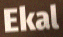
Ekal